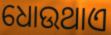
ଧୋଉଥାଏ